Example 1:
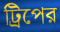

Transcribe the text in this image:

ট্রিপের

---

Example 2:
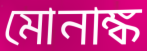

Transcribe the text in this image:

মোনাঙ্ক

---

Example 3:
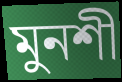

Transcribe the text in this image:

মুনশী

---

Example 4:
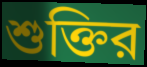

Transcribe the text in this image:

শুক্তির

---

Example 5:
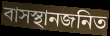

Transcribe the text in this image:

বাসস্থানজনিত